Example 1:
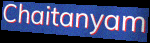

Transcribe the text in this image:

Chaitanyam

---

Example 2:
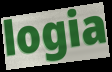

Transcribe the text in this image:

logia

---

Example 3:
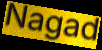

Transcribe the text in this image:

Nagad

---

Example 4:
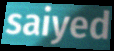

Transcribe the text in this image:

saiyed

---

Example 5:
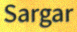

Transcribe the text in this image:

Sargar